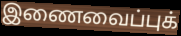
இணைவைப்புக்